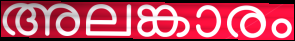
അലങ്കാരം